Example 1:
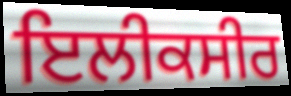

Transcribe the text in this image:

ਇਲੀਕਸੀਰ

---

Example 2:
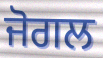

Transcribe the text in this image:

ਜੋਗਲ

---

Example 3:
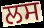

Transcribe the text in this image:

ਲਸ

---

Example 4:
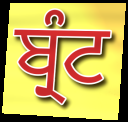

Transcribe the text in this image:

ਬ੍ਰੰਟ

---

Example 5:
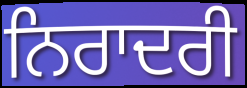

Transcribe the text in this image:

ਨਿਰਾਦਰੀ